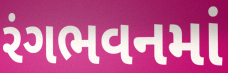
રંગભવનમાં